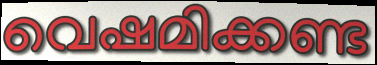
വെഷമിക്കണ്ട